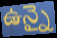
ఉన్నై